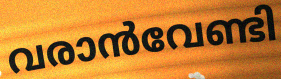
വരാൻവേണ്ടി